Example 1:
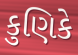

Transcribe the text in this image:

કુણિકે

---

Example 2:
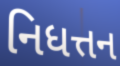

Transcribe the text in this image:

નિધત્તન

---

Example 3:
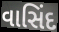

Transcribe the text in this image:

વાસિંદ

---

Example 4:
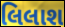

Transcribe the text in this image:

લિલાશ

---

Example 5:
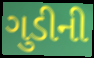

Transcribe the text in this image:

ગુડીની